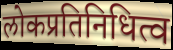
लोकप्रतिनिधित्व